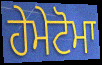
ਹੇਮੇਟੋਮਾ